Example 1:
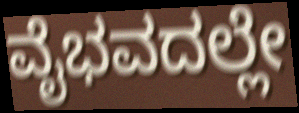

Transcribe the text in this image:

ವೈಭವದಲ್ಲೇ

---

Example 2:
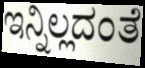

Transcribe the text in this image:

ಇನ್ನಿಲ್ಲದಂತೆ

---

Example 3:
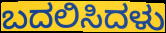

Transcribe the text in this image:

ಬದಲಿಸಿದಳು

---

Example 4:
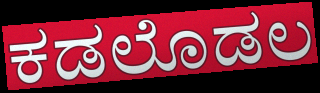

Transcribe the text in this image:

ಕಡಲೊಡಲ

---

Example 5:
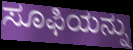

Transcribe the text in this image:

ಸೂಫಿಯನ್ನು